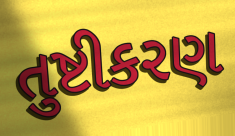
તુષ્ટીકરણ